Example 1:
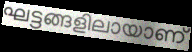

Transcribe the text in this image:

ഘട്ടങ്ങളിലായാണ്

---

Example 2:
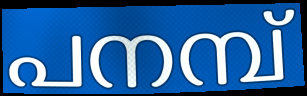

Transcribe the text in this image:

പനമ്പ്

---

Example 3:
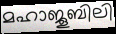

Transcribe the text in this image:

മഹാജൂബിലി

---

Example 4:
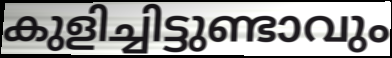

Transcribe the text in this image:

കുളിച്ചിട്ടുണ്ടാവും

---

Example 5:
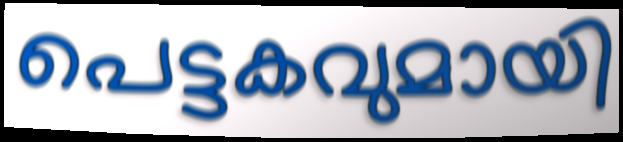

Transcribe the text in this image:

പെട്ടകവുമായി